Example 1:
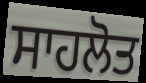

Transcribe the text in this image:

ਸਾਹਲੋਤ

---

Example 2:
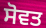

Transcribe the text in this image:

ਸੋਵਤ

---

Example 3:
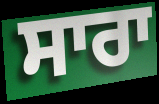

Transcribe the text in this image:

ਸਾਰਾ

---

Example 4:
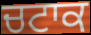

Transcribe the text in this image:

ਚਟਾਕ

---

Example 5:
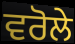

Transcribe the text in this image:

ਵਰੋਲੇ